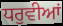
ਧਰੁਵੀਆਂ